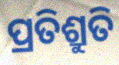
ପ୍ରତିଶ୍ରୁତି